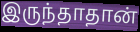
இருந்தாதான்